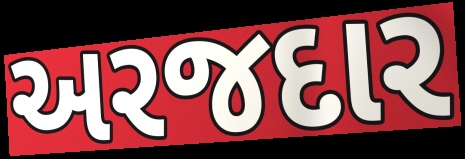
અરજદાર